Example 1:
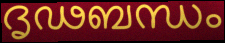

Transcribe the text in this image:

ദൃഢബന്ധം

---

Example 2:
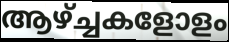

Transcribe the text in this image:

ആഴ്ച്ചകളോളം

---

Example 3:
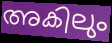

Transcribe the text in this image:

അകിലും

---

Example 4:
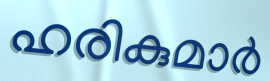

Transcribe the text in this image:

ഹരികുമാർ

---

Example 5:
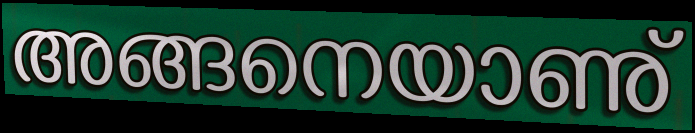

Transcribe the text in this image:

അങ്ങനെയാണു്